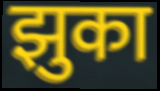
झुका